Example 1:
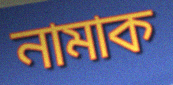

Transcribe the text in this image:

নামাক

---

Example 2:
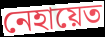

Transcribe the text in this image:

নেহায়েত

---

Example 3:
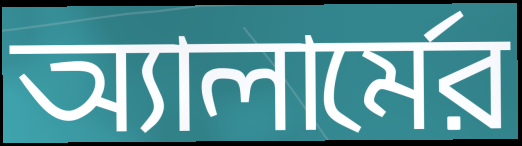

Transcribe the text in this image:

অ্যালার্মের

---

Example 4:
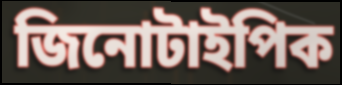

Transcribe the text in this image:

জিনোটাইপিক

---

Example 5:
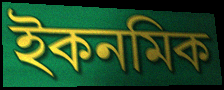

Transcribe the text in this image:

ইকনমিক